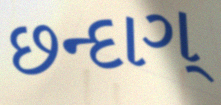
છન્દાગ્